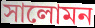
সালোমন